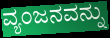
ವ್ಯಂಜನವನ್ನು